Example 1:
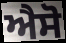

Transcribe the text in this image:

ਐਸੋ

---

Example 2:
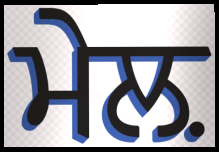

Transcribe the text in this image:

ਮੇਲ਼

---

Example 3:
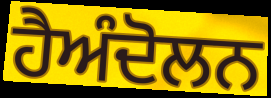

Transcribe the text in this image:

ਹੈਅੰਦੋਲਨ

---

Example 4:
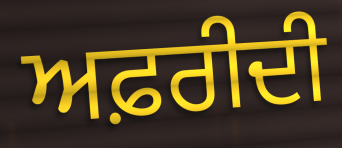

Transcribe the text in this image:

ਅਫ਼ਰੀਦੀ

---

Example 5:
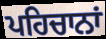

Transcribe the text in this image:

ਪਹਿਚਾਨਾਂ